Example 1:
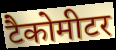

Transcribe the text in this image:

टैकोमीटर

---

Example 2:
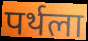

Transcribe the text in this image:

पर्थला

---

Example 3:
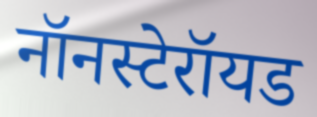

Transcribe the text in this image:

नॉनस्टेरॉयड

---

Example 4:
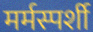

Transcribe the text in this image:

मर्मस्पर्शी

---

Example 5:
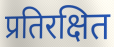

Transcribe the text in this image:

प्रतिरक्षित